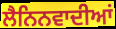
ਲੈਨਿਨਵਾਦੀਆਂ